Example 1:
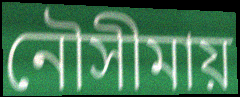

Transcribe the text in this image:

নৌসীমায়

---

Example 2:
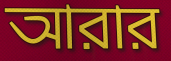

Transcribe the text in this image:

আরার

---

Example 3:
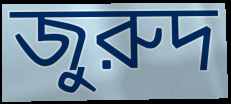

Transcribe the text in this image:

জুরুদ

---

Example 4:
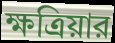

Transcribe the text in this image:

ক্ষত্রিয়ার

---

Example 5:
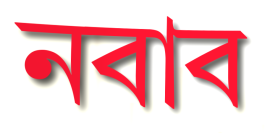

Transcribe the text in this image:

নবাব